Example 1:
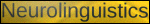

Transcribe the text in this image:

Neurolinguistics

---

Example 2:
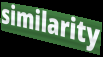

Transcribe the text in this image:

similarity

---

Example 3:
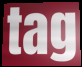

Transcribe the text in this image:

tag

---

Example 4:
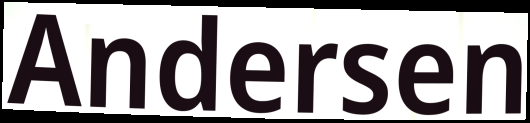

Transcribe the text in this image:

Andersen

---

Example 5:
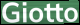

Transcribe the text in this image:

Giotto